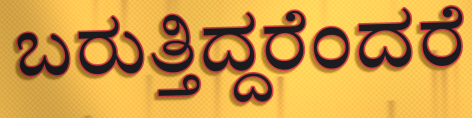
ಬರುತ್ತಿದ್ದರೆಂದರೆ